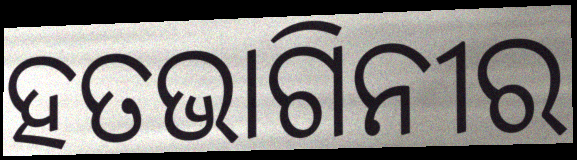
ହତଭାଗିନୀର